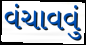
વંચાવવું